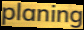
planing